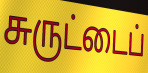
சுருட்டைப்